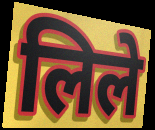
लिले